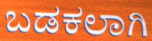
ಬಡಕಲಾಗಿ